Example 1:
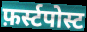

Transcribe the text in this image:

फ़र्स्टपोस्ट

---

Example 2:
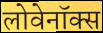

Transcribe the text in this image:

लोवेनॉक्स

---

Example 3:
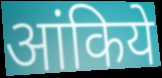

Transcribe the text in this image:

आंकिये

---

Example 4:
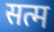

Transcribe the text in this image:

सत्म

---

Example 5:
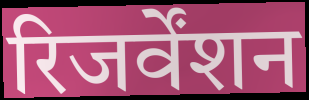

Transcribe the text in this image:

रिजर्वेंशन